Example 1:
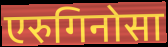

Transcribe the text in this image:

एरुगिनोसा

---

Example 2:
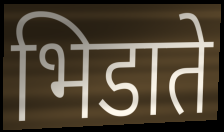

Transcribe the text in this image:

भिडाते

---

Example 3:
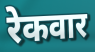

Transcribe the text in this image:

रेकवार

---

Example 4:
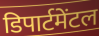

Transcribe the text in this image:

डिपार्टमेंटल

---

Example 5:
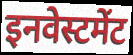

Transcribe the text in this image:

इनवेस्टमेंट